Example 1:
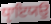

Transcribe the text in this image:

ਧੵਾਇਯਉ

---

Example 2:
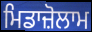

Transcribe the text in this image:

ਮਿਡਾਜ਼ੋਲਾਮ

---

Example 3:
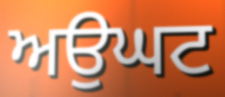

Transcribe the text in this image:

ਅਉਘਟ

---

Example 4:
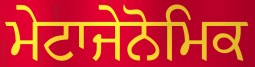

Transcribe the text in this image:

ਮੇਟਾਜੇਨੋਮਿਕ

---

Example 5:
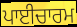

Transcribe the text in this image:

ਪਾਈਚਾਰਮ